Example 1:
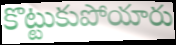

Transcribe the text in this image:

కొట్టుకుపోయారు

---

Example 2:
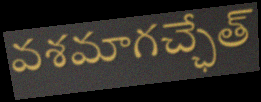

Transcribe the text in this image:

వశమాగచ్ఛేత్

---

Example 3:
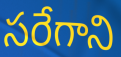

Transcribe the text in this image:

సరేగాని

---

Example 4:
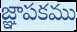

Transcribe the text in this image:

జ్ఞాపకము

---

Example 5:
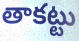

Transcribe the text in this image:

తాకట్టు